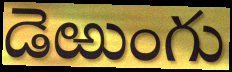
డెఱుంగు